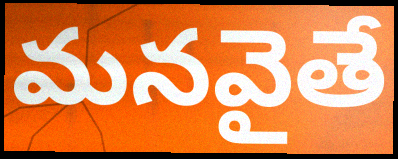
మనవైతే